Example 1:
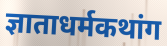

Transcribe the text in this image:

ज्ञाताधर्मकथांग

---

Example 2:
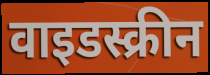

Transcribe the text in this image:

वाइडस्क्रीन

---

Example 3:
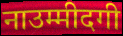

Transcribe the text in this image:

नाउम्मीदगी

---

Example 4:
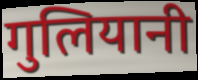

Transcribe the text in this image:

गुलियानी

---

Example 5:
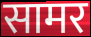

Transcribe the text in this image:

सामर